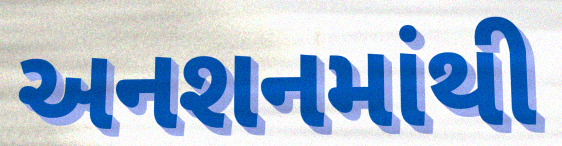
અનશનમાંથી